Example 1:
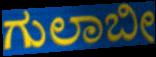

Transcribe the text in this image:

ಗುಲಾಬೀ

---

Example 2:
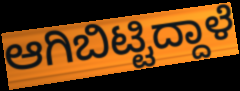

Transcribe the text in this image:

ಆಗಿಬಿಟ್ಟಿದ್ದಾಳೆ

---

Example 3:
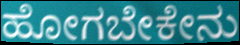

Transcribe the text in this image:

ಹೋಗಬೇಕೇನು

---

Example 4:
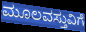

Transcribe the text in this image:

ಮೂಲವಸ್ತುವಿಗೆ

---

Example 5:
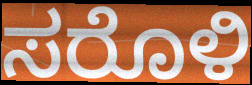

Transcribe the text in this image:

ಸರೊಳಿ